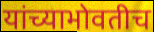
यांच्याभोवतीच